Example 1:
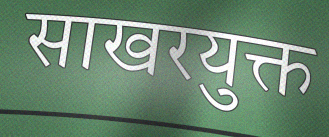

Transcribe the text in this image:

साखरयुक्त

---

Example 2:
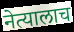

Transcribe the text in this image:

नेत्यालाच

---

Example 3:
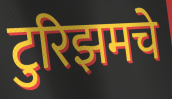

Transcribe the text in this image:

टुरिझमचे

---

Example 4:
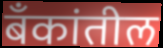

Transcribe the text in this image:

बॅंकांतील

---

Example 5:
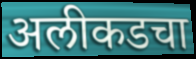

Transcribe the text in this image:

अलीकडचा